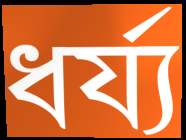
ধর্য্য